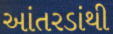
આંતરડાંથી